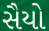
સૈયો